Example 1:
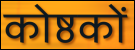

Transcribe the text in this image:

कोष्ठकों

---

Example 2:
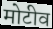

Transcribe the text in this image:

मोटीव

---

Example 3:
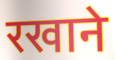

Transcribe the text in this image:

रखाने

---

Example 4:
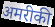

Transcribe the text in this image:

अमरीकी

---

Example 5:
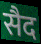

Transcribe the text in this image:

सैद